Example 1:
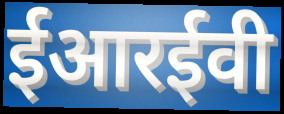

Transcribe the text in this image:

ईआरईवी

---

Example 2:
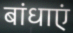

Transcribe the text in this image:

बांधाएं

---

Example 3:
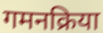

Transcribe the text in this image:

गमनक्रिया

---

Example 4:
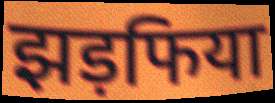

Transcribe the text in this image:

झड़फिया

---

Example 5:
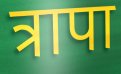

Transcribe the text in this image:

त्रापा